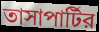
তাসাপার্টির